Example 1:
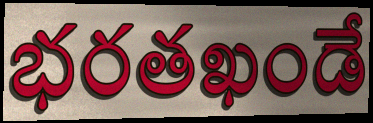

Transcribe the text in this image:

భరతఖండే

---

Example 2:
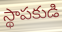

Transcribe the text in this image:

స్థాపకుడి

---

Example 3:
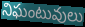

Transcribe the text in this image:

నిఘంటువులు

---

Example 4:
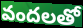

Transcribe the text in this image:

వందలతో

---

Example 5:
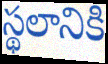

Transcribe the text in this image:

స్థలానికి